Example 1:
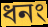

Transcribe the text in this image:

ধনং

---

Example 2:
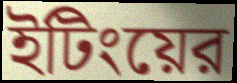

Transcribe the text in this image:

ইটিংয়ের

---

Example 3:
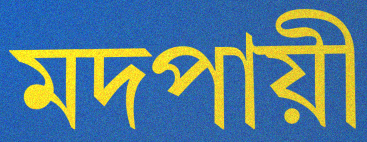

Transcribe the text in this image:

মদপায়ী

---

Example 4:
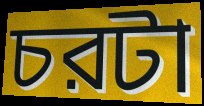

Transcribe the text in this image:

চরটা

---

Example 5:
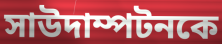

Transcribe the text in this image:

সাউদাম্পটনকে